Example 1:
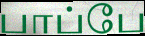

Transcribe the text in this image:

பாப்பே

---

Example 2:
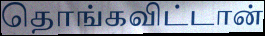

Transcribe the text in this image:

தொங்கவிட்டான்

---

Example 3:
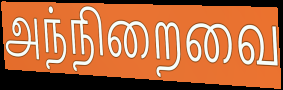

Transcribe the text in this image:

அந்நிறைவை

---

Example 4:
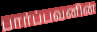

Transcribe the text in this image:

பார்ப்பவனின்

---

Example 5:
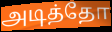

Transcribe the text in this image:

அடித்தோ